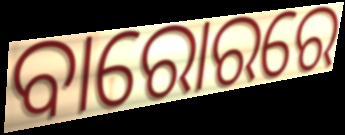
ବାରୋରରେ